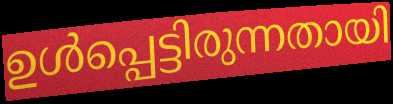
ഉൾപ്പെട്ടിരുന്നതായി